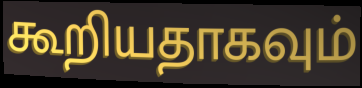
கூறியதாகவும்